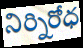
నిర్నిరోధ